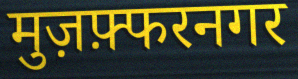
मुज़फ़्फरनगर